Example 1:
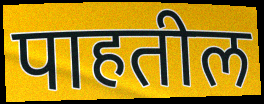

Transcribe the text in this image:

पाहतील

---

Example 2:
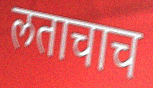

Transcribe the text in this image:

लताचाच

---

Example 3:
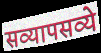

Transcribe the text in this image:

सव्यापसव्ये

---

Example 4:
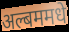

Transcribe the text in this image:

अल्बममधे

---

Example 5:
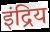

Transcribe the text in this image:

इंद्रिय